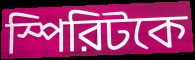
স্পিরিটকে